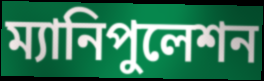
ম্যানিপুলেশন